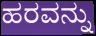
ಹರವನ್ನು